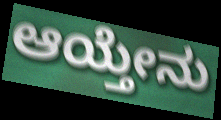
ಆಯ್ತೇನು